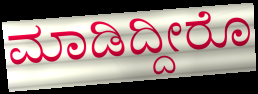
ಮಾಡಿದ್ದೀರೊ